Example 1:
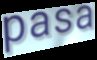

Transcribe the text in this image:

pasa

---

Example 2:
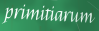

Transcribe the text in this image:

primitiarum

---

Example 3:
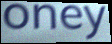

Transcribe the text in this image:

oney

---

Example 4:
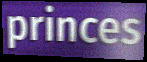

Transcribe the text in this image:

princes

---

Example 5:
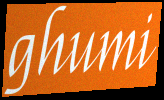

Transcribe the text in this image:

ghumi